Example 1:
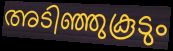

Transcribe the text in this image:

അടിഞ്ഞുകൂടും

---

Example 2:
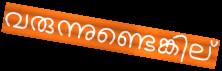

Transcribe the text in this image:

വരുന്നുണ്ടെങ്കില്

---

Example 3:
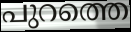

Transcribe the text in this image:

പുറത്തെ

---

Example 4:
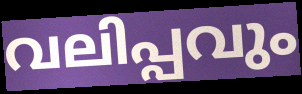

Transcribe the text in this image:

വലിപ്പവും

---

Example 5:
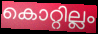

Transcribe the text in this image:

കൊറ്റില്ലം